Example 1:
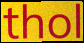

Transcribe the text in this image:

thol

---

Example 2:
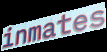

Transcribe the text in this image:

inmates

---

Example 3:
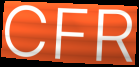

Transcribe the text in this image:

CFR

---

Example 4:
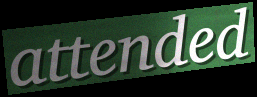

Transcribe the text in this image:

attended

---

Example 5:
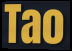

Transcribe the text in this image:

Tao